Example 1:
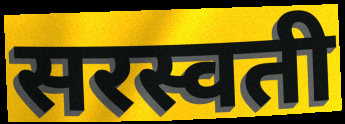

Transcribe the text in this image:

सरस्वती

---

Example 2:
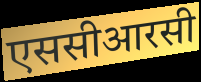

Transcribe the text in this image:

एससीआरसी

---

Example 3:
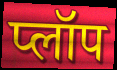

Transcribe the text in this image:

प्लॉप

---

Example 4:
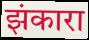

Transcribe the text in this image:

झंकारा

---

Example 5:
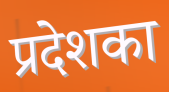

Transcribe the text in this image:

प्रदेशका